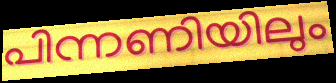
പിന്നണിയിലും